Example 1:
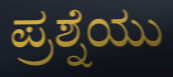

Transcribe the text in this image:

ಪ್ರಶ್ನೆಯು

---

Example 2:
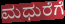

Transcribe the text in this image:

ಮಧುರೆಗೆ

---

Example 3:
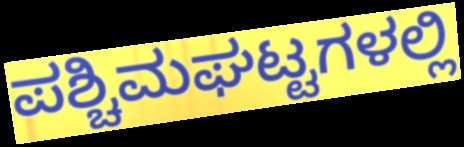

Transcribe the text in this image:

ಪಶ್ಚಿಮಘಟ್ಟಗಳಲ್ಲಿ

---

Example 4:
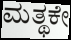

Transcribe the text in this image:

ಮತ್ಥಕೇ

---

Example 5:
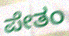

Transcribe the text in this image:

ಪೇತಂ